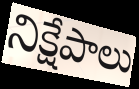
నిక్షేపాలు